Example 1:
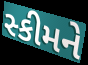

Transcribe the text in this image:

સ્કીમને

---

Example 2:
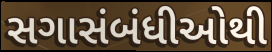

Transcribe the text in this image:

સગાસંબંધીઓથી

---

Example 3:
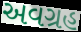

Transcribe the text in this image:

અવગ્રહ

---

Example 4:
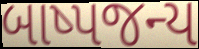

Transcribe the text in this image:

બાષ્પજન્ય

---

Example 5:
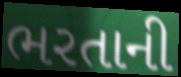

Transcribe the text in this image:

ભરતાની